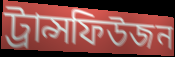
ট্ৰান্সফিউজন